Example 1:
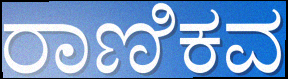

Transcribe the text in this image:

ರಾಣಿಕವ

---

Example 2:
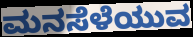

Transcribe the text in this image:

ಮನಸೆಳೆಯುವ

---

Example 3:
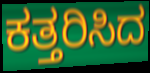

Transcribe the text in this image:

ಕತ್ತರಿಸಿದ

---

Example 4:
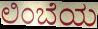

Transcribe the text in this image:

ಲಿಂಬೆಯ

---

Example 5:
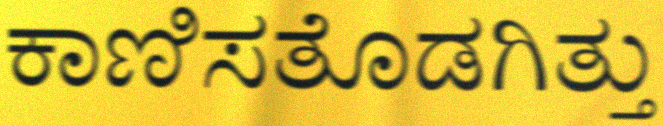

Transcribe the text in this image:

ಕಾಣಿಸತೊಡಗಿತ್ತು